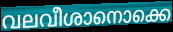
വലവീശാനൊക്കെ